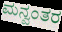
ಮನ್ವಂತರ